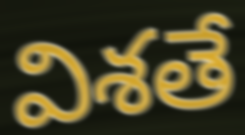
విశతే